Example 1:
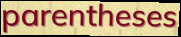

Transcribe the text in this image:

parentheses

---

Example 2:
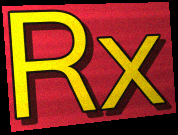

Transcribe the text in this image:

Rx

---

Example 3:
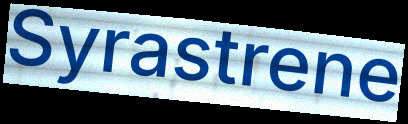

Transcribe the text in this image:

Syrastrene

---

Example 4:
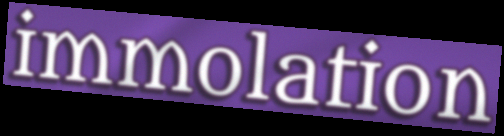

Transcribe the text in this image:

immolation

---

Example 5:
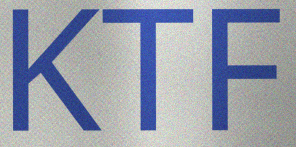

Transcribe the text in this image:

KTF